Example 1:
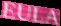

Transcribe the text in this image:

EULA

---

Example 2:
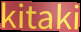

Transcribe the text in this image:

kitaki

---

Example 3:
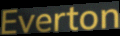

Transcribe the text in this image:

Everton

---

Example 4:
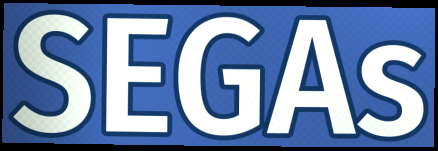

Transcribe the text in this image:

SEGAs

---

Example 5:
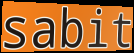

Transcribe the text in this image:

sabit